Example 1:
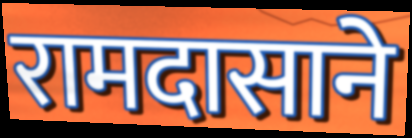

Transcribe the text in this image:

रामदासाने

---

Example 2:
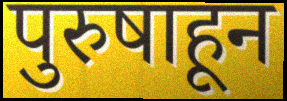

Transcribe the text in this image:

पुरुषाहून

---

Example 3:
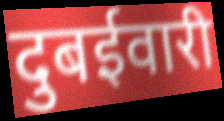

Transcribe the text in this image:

दुबईवारी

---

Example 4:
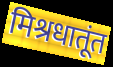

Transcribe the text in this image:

मिश्रधातूंत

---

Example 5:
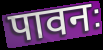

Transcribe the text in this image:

पावनः